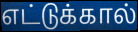
எட்டுக்கால்